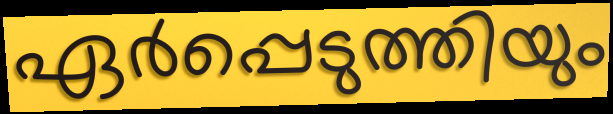
ഏർപ്പെടുത്തിയും